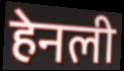
हेनली